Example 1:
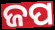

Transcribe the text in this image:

ଜପ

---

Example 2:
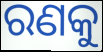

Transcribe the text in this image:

ରଣକୁ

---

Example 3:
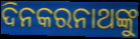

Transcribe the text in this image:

ଦିନକରନାଥଙ୍କୁ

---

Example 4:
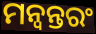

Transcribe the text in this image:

ମନ୍ବନ୍ତରଂ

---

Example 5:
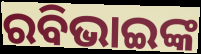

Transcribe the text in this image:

ରବିଭାଇଙ୍କ